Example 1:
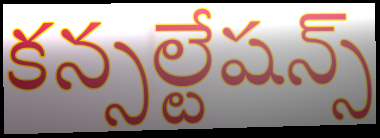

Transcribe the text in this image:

కన్సల్టేషన్స్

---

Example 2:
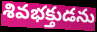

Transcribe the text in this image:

శివభక్తుడను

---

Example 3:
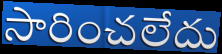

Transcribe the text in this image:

సారించలేదు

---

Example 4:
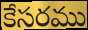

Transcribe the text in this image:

కేసరము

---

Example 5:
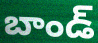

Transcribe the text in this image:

బాండ్